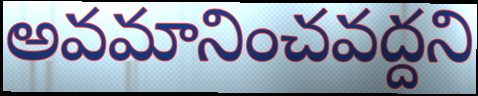
అవమానించవద్దని